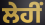
ਲੇਹੀਂ